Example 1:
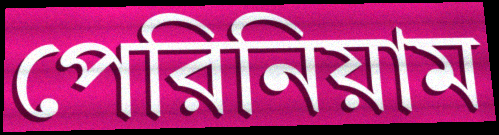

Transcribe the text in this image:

পেরিনিয়াম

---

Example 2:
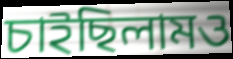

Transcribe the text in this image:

চাইছিলামও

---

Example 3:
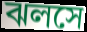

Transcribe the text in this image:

ঝলসে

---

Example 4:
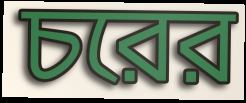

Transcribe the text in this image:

চরের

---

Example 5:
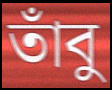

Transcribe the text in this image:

তাঁবু